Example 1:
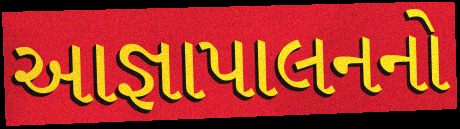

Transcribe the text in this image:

આજ્ઞાપાલનનો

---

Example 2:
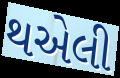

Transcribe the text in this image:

થએલી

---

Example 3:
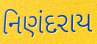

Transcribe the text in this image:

નિણંદરાય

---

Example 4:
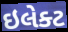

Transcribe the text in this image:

ઇલેક્ટ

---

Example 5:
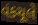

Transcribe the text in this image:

વંકચૂલે